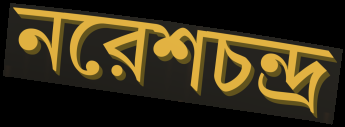
নরেশচন্দ্র